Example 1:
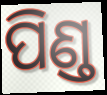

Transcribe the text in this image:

ପିଣ୍ଡ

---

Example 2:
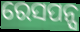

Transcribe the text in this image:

ରେସପନ୍ସ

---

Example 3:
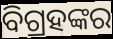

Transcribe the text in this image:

ବିଗ୍ରହଙ୍କର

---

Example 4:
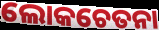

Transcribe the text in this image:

ଲୋକଚେତନା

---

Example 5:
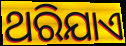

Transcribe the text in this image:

ଥରିଯାଏ